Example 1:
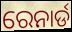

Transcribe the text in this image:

ରେନାର୍ଡ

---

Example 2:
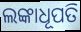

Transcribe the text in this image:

ଲଙ୍କାଧୂପତି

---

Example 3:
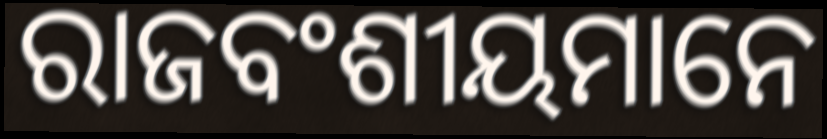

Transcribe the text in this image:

ରାଜବଂଶୀୟମାନେ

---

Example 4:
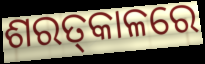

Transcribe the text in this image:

ଶରତ୍‌କାଳରେ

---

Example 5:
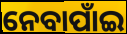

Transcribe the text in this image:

ନେବାପାଁଇ